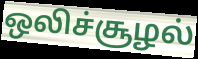
ஒலிச்சூழல்